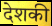
देशकी